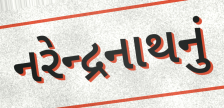
નરેન્દ્રનાથનું